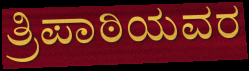
ತ್ರಿಪಾಠಿಯವರ